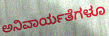
ಅನಿವಾರ್ಯತೆಗಳೂ